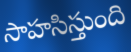
సాహసిస్తుంది